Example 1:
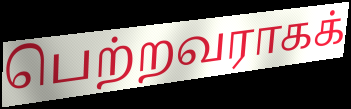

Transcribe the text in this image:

பெற்றவராகக்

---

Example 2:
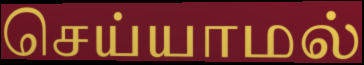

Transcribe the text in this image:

செய்யாமல்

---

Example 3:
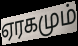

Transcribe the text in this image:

ஏரகமும்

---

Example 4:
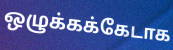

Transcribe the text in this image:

ஒழுக்கக்கேடாக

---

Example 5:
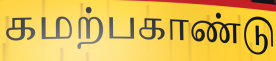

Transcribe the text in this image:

கமற்பகாண்டு